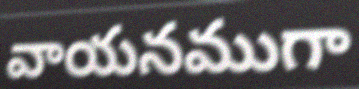
వాయనముగా